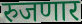
रुजणार